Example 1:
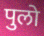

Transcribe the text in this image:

पुलो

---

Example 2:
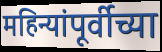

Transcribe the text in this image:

महिन्यांपूर्वीच्या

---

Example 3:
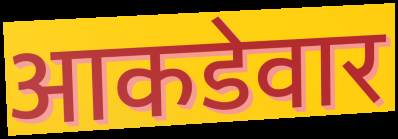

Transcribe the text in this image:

आकडेवार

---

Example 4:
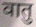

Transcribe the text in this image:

वातु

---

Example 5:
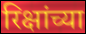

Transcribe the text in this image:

रिक्षांच्या